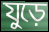
যুড়ে